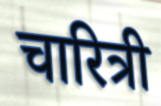
चारित्री